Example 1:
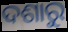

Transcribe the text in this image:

ଦଶାରୁ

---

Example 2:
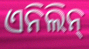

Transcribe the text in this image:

ଏନିଲିନ୍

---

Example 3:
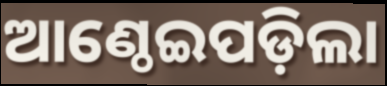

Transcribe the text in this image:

ଆଣ୍ଠେଇପଡ଼ିଲା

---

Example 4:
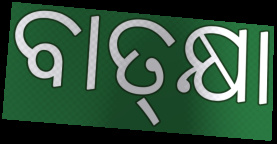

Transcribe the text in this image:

ବାତ୍କ୍ଷା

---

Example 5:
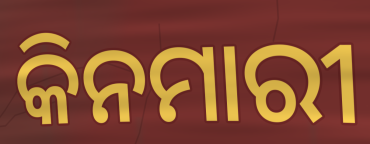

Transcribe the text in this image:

କିନମାରୀ